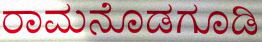
ರಾಮನೊಡಗೂಡಿ